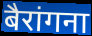
बैरांगना